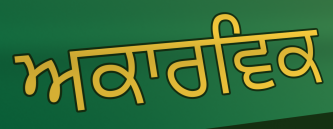
ਅਕਾਰਵਿਕ